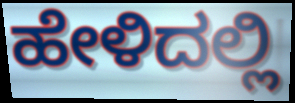
ಹೇಳಿದಲ್ಲಿ